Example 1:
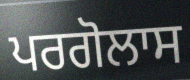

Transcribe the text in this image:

ਪਰਗੋਲਾਸ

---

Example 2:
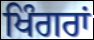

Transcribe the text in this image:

ਖਿੰਗਰਾਂ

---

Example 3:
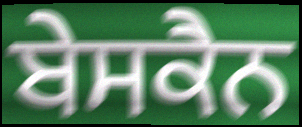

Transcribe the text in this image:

ਬੇਸਕੈਨ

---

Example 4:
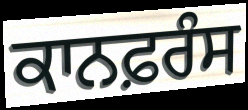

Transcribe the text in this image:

ਕਾਨਫ਼ਰੰਸ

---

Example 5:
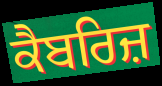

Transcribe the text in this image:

ਕੈਬਰਿਜ਼